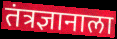
तंत्रज्ञानाला